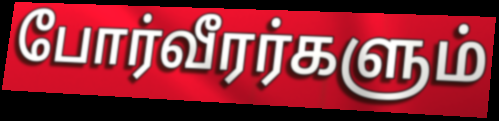
போர்வீரர்களும்